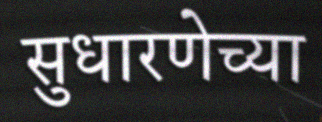
सुधारणेच्या